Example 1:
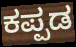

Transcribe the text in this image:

ಕಪ್ಪಡ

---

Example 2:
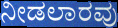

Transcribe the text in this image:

ನೀಡಲಾರವು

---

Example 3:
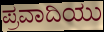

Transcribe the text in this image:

ಪ್ರವಾದಿಯು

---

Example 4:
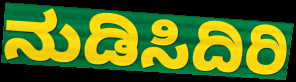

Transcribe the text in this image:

ನುಡಿಸಿದಿರಿ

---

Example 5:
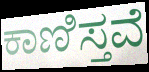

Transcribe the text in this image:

ಕಾಣಿಸ್ತವೆ